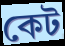
কেট